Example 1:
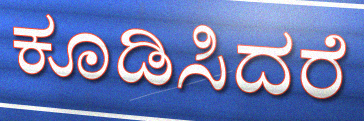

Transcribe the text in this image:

ಕೂಡಿಸಿದರೆ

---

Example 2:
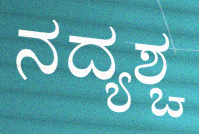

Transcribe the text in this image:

ನದ್ಯಶ್ಚ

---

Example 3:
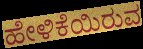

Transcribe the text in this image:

ಹೇಳಿಕೆಯಿರುವ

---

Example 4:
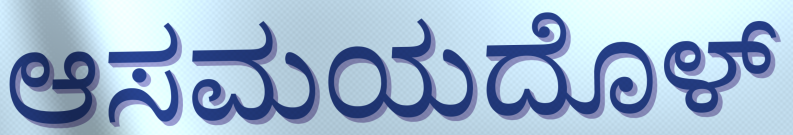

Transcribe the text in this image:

ಆಸಮಯದೊಳ್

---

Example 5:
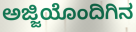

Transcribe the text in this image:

ಅಜ್ಜಿಯೊಂದಿಗಿನ